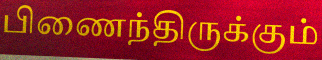
பிணைந்திருக்கும்